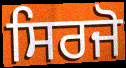
ਸਿਰਜੋ